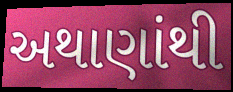
અથાણાંથી